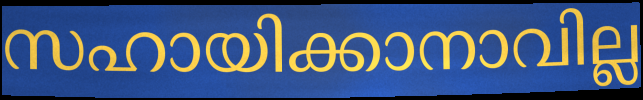
സഹായിക്കാനാവില്ല